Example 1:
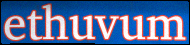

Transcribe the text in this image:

ethuvum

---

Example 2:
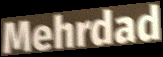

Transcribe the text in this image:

Mehrdad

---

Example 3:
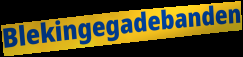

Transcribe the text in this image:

Blekingegadebanden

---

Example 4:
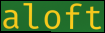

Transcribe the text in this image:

aloft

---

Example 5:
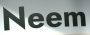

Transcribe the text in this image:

Neem